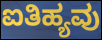
ಐತಿಹ್ಯವು